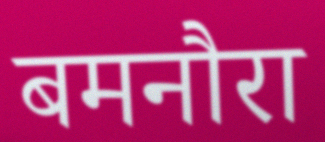
बमनौरा